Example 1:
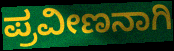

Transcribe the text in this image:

ಪ್ರವೀಣನಾಗಿ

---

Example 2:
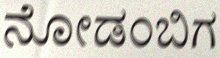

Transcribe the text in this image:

ನೋಡಂಬಿಗ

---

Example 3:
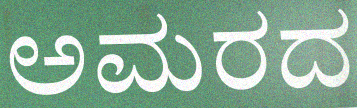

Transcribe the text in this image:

ಅಮರದ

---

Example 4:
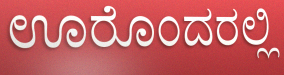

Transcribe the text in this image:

ಊರೊಂದರಲ್ಲಿ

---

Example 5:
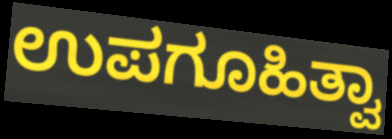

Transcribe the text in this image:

ಉಪಗೂಹಿತ್ವಾ